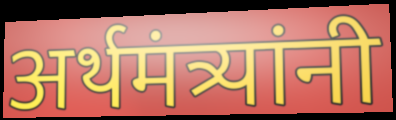
अर्थमंत्र्यांनी